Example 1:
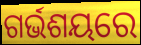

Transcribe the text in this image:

ଗର୍ଭଶୟରେ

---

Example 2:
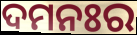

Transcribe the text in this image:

ଦମନଃର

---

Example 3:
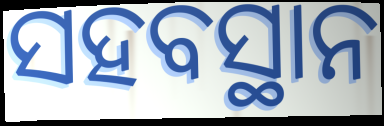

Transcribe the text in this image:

ସହବସ୍ଥାନ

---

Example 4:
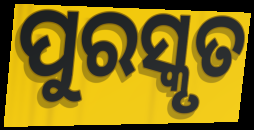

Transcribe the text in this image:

ପୁରସ୍କୃତ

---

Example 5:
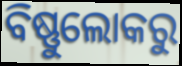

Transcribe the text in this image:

ବିଷ୍ଣୁଲୋକରୁ